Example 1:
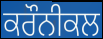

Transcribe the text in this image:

ਕਰੌਨੀਕਲ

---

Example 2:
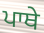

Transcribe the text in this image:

ਪਾਥੇ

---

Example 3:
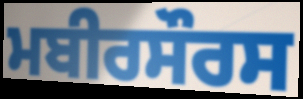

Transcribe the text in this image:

ਮਬੀਰਸੌਰਸ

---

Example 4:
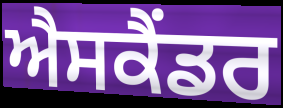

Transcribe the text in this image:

ਐਸਕੈਂਡਰ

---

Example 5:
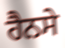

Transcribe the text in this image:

ਹੈਨਸੇ